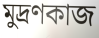
মুদ্রণকাজ